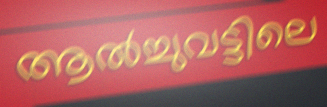
ആൽച്ചുവട്ടിലെ